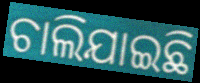
ଚାଲିଯାଇଛି